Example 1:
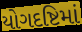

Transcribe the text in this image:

યોગદષ્ટિમાં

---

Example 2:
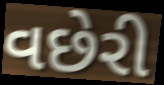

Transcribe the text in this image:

વછેરી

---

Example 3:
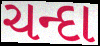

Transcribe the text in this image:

ચન્દા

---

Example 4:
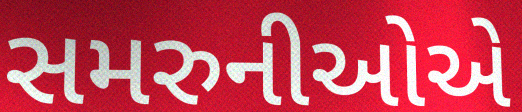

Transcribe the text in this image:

સમરુનીઓએ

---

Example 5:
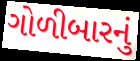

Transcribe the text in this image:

ગોળીબારનું